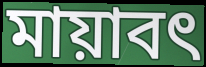
মায়াবৎ